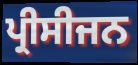
ਪ੍ਰੀਸੀਜਨ